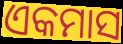
ଏକମାସ